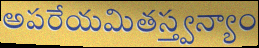
అపరేయమితస్త్వన్యాం